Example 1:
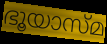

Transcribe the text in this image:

ഭൂയാസ്മ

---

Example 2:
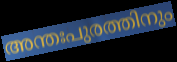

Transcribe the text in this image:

അന്തഃപുരത്തിനും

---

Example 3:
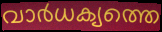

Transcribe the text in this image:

വാർധക്യത്തെ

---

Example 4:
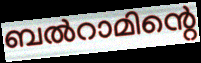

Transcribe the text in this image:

ബൽറാമിന്റെ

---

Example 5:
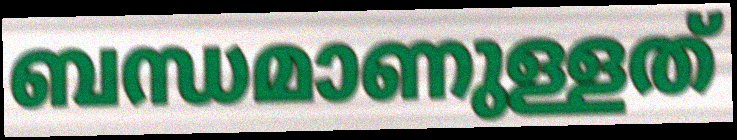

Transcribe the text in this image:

ബന്ധമാണുള്ളത്